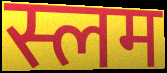
स्लम